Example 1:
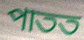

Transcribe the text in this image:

পাতত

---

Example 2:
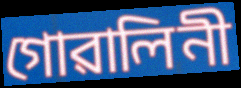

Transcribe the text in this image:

গোৱালিনী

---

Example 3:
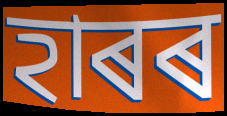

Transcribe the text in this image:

হাৰৰ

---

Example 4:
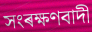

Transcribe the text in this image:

সংৰক্ষণবাদী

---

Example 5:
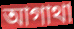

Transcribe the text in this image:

আগাথা